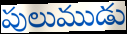
పులుముడు